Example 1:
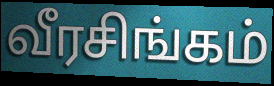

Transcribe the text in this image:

வீரசிங்கம்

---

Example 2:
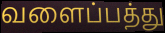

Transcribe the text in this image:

வளைப்பத்து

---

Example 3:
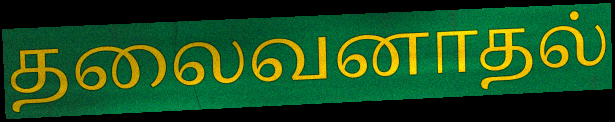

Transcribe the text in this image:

தலைவனாதல்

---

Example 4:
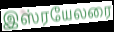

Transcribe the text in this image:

இஸ்ரயேலரை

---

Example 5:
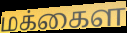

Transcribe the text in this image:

மக்கைள